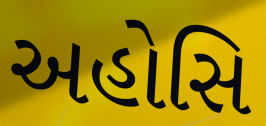
અહોસિ